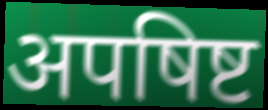
अपषिष्ट